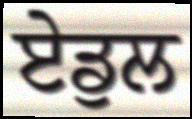
ਏਡੁਲ